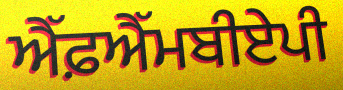
ਐੱਫ਼ਐੱਮਬੀਏਪੀ